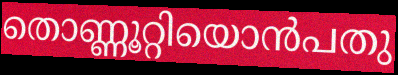
തൊണ്ണൂറ്റിയൊൻപതു